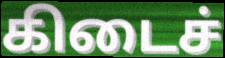
கிடைச்